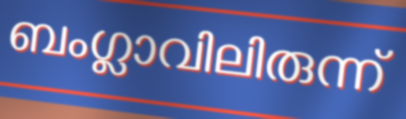
ബംഗ്ലാവിലിരുന്ന്